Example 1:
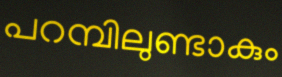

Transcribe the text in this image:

പറമ്പിലുണ്ടാകും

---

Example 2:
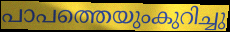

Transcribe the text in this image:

പാപത്തെയുംകുറിച്ചു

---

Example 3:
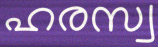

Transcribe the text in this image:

ഹരസ്വ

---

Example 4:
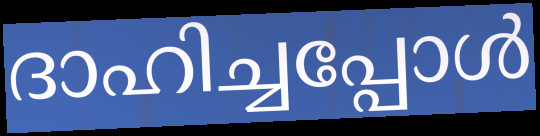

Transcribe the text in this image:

ദാഹിച്ചപ്പോൾ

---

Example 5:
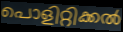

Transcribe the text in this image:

പൊളിറ്റിക്കൽ